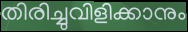
തിരിച്ചുവിളിക്കാനും